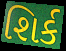
શિર્ક